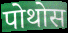
पोथोस